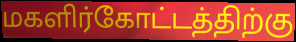
மகளிர்கோட்டத்திற்கு